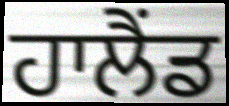
ਹਾਲੈਂਡ